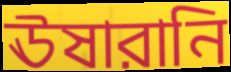
ঊষারানি